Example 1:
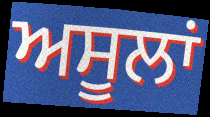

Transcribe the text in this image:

ਅਸੂਲਾਂ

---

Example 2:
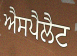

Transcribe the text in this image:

ਐਸਪੈਲੈਟ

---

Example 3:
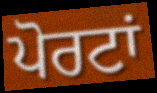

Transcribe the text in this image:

ਪੋਰਟਾਂ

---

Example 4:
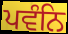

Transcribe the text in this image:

ਪਵੰਨਿ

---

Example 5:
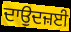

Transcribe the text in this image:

ਦਾਉਦਜ਼ਈ